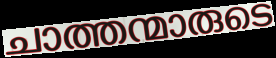
ചാത്തന്മാരുടെ